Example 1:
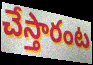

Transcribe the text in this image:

చేస్తారంట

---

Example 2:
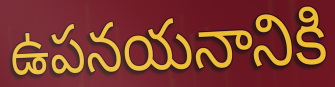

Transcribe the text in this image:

ఉపనయనానికి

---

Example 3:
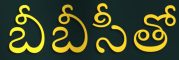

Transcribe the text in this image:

బీబీసీతో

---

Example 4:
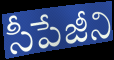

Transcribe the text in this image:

సీపేజీని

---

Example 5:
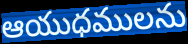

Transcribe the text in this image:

ఆయుధములను